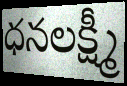
ధనలక్ష్మీ